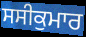
ਸਸੀਕੁਮਾਰ